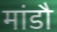
मांडौ